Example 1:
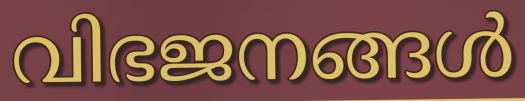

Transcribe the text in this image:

വിഭജനങ്ങൾ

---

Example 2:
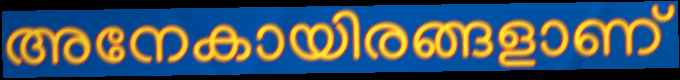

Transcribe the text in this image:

അനേകായിരങ്ങളാണ്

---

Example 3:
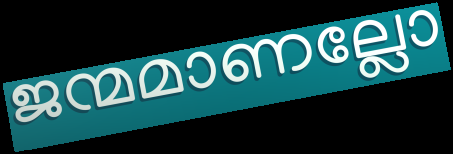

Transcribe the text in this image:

ജന്മമാണല്ലോ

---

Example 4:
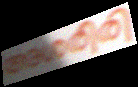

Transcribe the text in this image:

അശരീരി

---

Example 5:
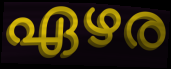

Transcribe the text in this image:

ഏഴര